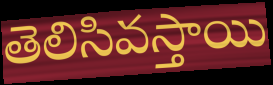
తెలిసివస్తాయి